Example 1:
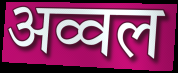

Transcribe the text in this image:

अव्वल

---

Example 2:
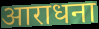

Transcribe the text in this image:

आराधना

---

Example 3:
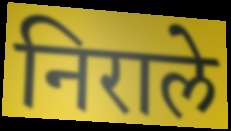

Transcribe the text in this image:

निराले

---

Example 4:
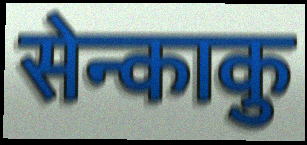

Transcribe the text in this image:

सेन्काकु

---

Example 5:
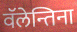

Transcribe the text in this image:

वॅलेन्तिना